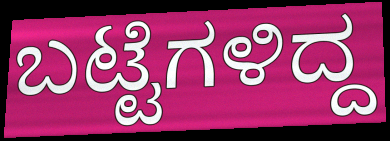
ಬಟ್ಟೆಗಳಿದ್ದ